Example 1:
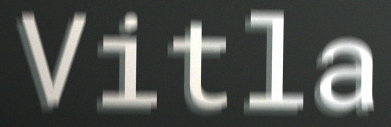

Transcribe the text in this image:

Vitla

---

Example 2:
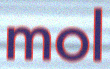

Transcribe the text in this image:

mol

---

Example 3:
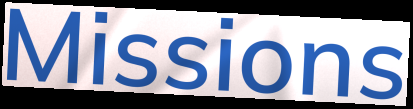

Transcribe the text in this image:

Missions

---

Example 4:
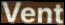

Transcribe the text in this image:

Vent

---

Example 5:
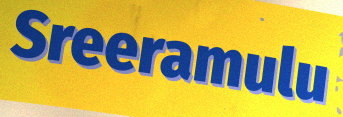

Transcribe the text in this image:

Sreeramulu